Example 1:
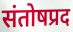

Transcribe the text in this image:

संतोषप्रद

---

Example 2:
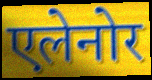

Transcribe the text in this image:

एलेनोर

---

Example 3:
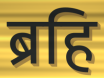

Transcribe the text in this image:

ब्रहि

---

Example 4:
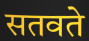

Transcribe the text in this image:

सतवते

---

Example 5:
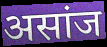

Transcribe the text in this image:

असांज